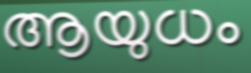
ആയുധം